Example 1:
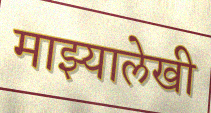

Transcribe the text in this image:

माझ्यालेखी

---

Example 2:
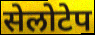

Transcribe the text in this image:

सेलोटेप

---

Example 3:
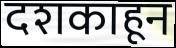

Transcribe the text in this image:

दशकाहून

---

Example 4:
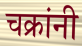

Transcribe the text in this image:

चक्रांनी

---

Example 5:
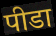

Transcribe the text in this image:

पीडा